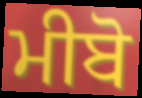
ਮੀਬੋ